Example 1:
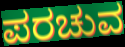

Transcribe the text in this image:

ಪರಚುವ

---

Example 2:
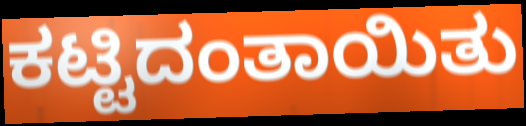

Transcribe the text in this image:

ಕಟ್ಟಿದಂತಾಯಿತು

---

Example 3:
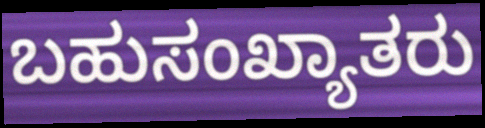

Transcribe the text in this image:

ಬಹುಸಂಖ್ಯಾತರು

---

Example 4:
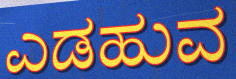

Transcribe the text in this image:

ಎಡಹುವ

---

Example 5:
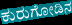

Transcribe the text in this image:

ಕುರುಗೋಡಿನ